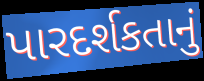
પારદર્શકતાનું